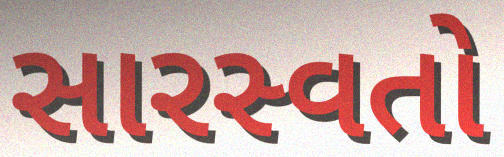
સારસ્વતો